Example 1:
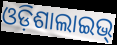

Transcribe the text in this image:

ଓଡ଼ିଶାଲାଇଭ୍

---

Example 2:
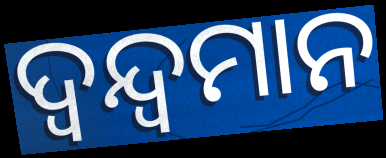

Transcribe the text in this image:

ଦ୍ଵନ୍ଦ୍ଵମାନ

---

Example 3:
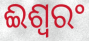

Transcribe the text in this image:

ଈଶ୍ଵରଂ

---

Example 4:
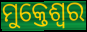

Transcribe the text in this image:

ମୁକ୍ତେଶ୍ଵର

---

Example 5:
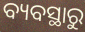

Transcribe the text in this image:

ବ୍ୟବସ୍ଥାରୁ